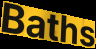
Baths